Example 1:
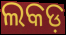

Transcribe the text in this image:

ଲକଡ଼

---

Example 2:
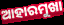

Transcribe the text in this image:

ଆହାରମୁଖା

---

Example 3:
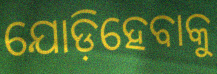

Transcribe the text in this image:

ଯୋଡ଼ିହେବାକୁ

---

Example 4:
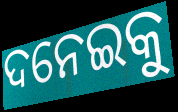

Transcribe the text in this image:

ଦନେଇକୁ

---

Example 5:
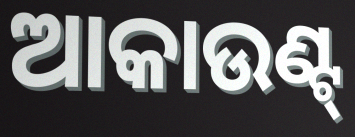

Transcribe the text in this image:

ଆକାଉଣ୍ଟ୍